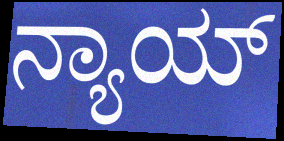
ನ್ಯಾಯ್